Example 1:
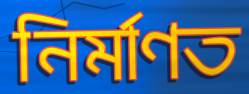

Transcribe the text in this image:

নিৰ্মাণত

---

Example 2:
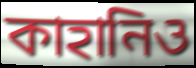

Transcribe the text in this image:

কাহানিও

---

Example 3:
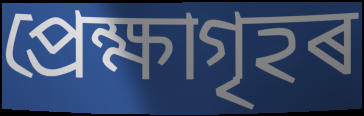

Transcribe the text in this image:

প্ৰেক্ষাগৃহৰ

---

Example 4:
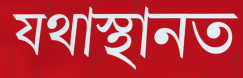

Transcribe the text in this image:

যথাস্থানত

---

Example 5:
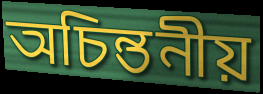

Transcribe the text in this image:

অচিন্তনীয়